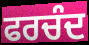
ਫਰਚੰਦ